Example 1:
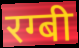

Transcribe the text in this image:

रग्बी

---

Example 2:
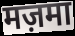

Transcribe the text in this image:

मज़मा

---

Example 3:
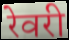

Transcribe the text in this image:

रेवरी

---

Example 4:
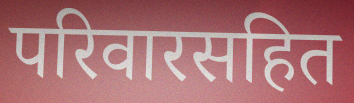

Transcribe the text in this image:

परिवारसहित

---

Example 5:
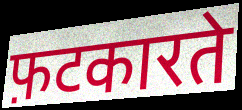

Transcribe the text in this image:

फ़टकारते